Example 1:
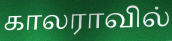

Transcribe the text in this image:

காலராவில்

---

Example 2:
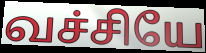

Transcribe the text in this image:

வச்சியே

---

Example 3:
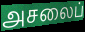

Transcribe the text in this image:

அசலைப்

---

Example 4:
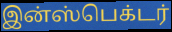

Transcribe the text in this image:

இன்ஸ்பெக்டர்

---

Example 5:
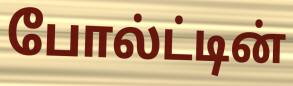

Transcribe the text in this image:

போல்ட்டின்